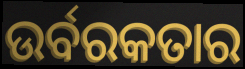
ଉର୍ବରକତାର